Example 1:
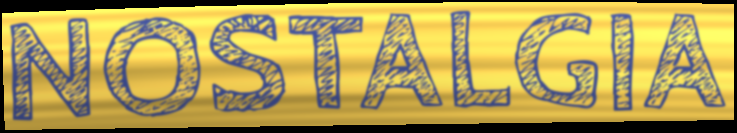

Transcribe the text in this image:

NOSTALGIA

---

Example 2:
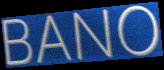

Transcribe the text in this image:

BANO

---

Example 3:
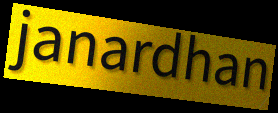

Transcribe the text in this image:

janardhan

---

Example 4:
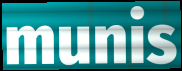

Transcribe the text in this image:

munis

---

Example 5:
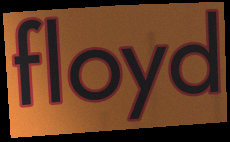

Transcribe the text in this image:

floyd